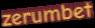
zerumbet